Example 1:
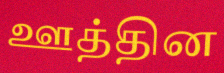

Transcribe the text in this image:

ஊத்தின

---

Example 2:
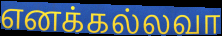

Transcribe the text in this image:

எனக்கல்லவா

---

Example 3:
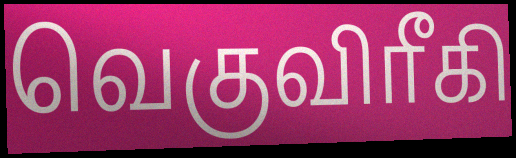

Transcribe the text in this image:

வெகுவிரீகி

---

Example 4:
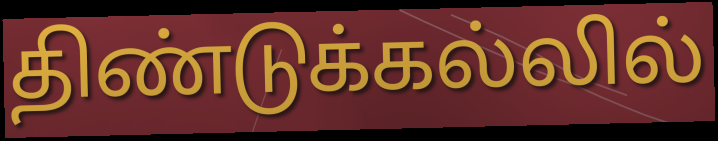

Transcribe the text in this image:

திண்டுக்கல்லில்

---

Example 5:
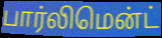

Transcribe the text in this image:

பார்லிமென்ட்